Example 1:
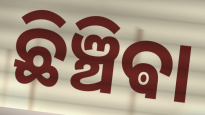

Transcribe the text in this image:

ଛିଞ୍ଚିଵା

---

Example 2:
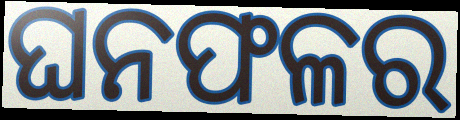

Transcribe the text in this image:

ଘନଫଳର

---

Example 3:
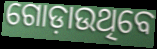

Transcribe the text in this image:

ଗୋଡ଼ାଉଥିବେ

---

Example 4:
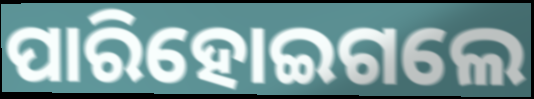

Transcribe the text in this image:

ପାରିହୋଇଗଲେ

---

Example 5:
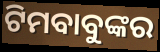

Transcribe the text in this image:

ଟିମବାବୁଙ୍କର